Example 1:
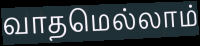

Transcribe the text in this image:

வாதமெல்லாம்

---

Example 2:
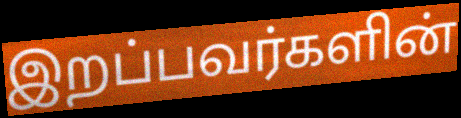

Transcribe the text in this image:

இறப்பவர்களின்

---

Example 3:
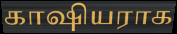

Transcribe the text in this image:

காஷியராக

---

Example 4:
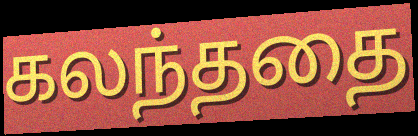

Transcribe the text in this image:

கலந்ததை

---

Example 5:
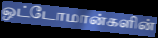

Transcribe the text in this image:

ஒட்டோமான்களின்